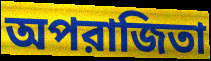
অপরাজিতা